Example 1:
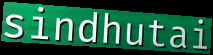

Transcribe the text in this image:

sindhutai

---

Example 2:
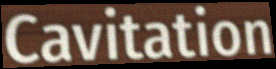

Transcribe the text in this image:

Cavitation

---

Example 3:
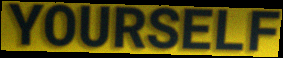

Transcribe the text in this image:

YOURSELF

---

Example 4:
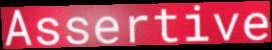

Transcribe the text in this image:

Assertive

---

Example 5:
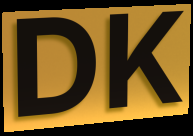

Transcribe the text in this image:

DK